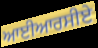
ਆਈਆਰਸੀਏ